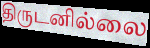
திருடனில்லை